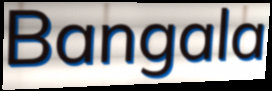
Bangala